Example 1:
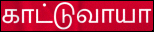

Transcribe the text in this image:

காட்டுவாயா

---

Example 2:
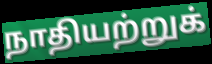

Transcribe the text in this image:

நாதியற்றுக்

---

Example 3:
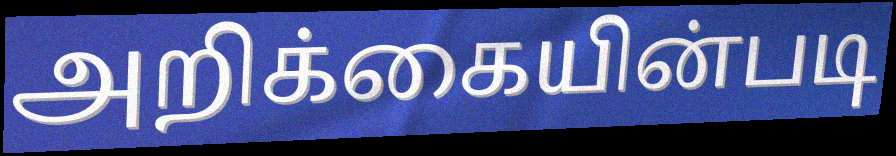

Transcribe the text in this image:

அறிக்கையின்படி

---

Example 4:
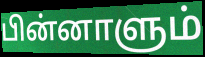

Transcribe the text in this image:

பின்னாளும்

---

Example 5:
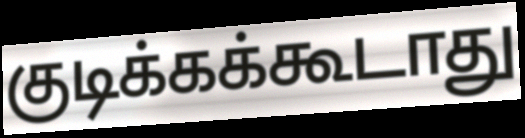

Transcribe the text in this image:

குடிக்கக்கூடாது